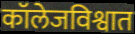
कॉलेजविश्वात